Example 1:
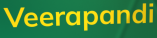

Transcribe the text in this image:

Veerapandi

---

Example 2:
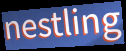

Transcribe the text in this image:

nestling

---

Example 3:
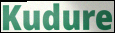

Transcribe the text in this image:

Kudure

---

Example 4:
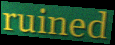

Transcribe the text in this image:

ruined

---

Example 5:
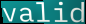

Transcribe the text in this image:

valid